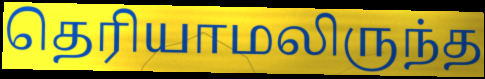
தெரியாமலிருந்த